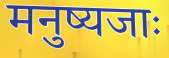
मनुष्यजाः